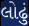
લોઢું